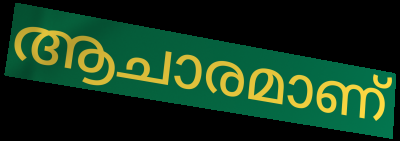
ആചാരമാണ്